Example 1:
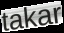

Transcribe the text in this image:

takar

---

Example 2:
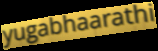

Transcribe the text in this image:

yugabhaarathi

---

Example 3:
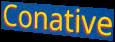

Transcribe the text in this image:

Conative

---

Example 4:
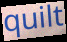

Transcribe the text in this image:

quilt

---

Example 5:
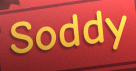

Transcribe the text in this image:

Soddy